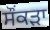
ਸੌਂਕੜਾ